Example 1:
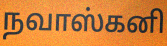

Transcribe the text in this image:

நவாஸ்கனி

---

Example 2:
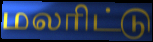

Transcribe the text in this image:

மலரிட்டு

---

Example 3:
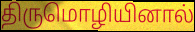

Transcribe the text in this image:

திருமொழியினால்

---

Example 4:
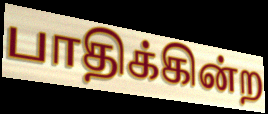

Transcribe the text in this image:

பாதிக்கின்ற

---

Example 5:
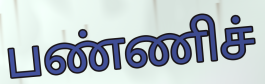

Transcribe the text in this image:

பண்ணிச்